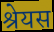
श्रेयस